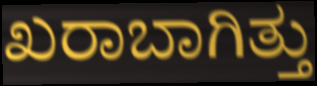
ಖರಾಬಾಗಿತ್ತು